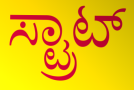
ಸ್ಟ್ರಾಟ್